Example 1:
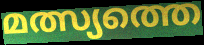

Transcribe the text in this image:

മത്സ്യത്തെ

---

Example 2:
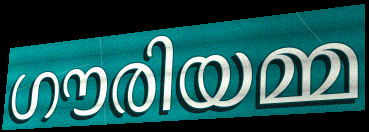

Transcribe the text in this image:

ഗൗരിയമ്മ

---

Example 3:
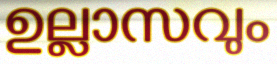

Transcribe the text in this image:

ഉല്ലാസവും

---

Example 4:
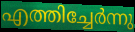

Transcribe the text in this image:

എത്തിച്ചേർന്നു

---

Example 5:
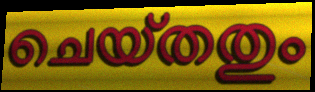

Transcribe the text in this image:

ചെയ്‌തതും